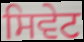
ਸਿਵੇਟ